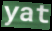
yat